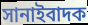
সানাইবাদক